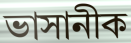
ভাসানীক